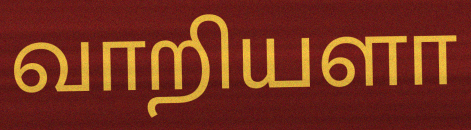
வாறியளா